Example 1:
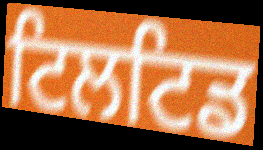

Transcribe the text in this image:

ਟਿਲਟਿਡ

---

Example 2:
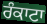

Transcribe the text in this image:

ਰੰਕਾਟਾ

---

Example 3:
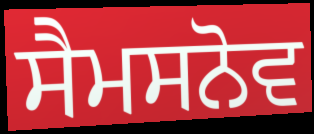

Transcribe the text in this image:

ਸੈਮਸਨੋਵ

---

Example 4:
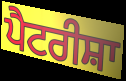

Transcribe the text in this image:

ਪੈਟਰੀਸ਼ਾ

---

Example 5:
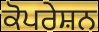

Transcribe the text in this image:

ਕੋਪਰੇਸ਼ਨ